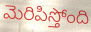
మెరిపిస్తోంది